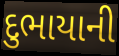
દુભાયાની